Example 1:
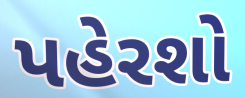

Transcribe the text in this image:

પહેરશો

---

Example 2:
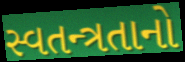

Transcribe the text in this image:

સ્વતન્ત્રતાનો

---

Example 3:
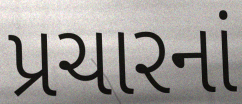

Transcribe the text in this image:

પ્રચારનાં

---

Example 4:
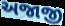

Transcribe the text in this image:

અજાજી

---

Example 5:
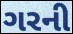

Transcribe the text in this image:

ગરની